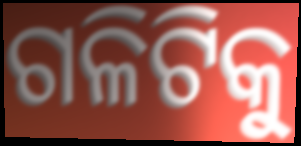
ଗଳିଟିକୁ